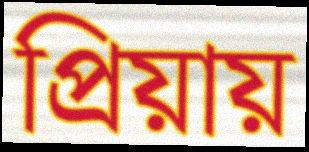
প্রিয়ায়